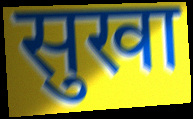
सुखा